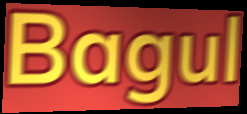
Bagul